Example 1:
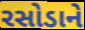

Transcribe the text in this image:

રસોડાને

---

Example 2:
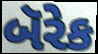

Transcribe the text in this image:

બૅરેક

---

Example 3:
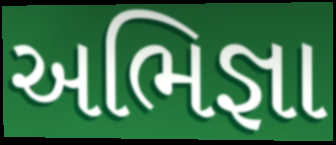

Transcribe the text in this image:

અભિજ્ઞા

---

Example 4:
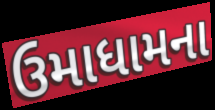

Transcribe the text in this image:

ઉમાધામના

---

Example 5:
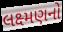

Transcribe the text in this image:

લક્ષ્મણનો